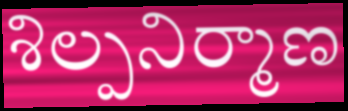
శిల్పనిర్మాణ